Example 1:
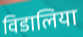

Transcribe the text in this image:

विडालिया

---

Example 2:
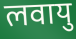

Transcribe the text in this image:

लवायु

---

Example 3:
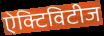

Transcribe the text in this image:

ऐक्टिविटीज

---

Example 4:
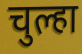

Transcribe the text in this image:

चुल्हा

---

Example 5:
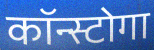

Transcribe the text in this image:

कॉन्स्टोगा